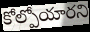
కోల్పోయారని